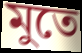
মুতে